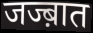
जज्ब़ात